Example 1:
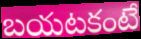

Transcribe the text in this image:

బయటకంటే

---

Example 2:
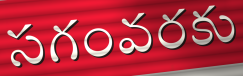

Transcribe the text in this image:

సగంవరకు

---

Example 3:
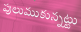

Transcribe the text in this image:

పులుముకున్నట్టు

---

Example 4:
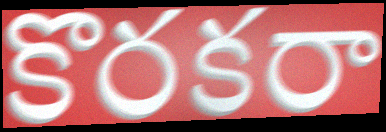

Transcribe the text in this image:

కొరకరా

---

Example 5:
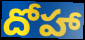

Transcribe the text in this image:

దోహా